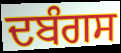
ਦਬੰਗਸ